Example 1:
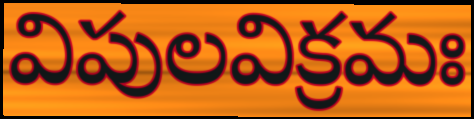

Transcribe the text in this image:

విపులవిక్రమః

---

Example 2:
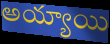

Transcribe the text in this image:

అయ్యాయి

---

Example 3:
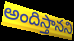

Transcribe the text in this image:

అందిస్తానని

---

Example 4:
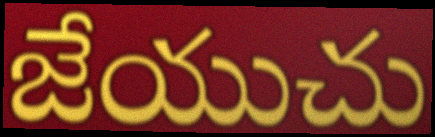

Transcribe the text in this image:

జేయుచు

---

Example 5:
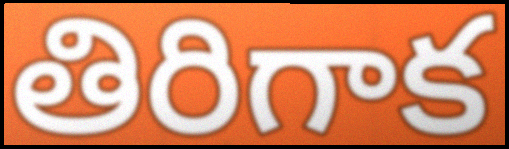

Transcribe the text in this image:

తిరిగాక